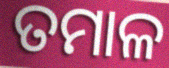
ତମାଳ